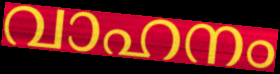
വാഹനം